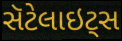
સૅટેલાઇટ્સ